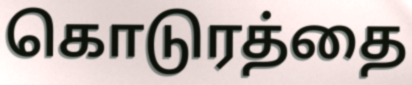
கொடுரத்தை